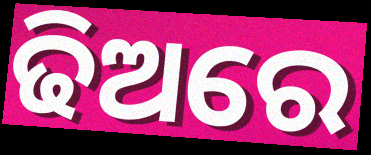
ଢିଅରେ